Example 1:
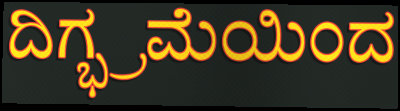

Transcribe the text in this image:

ದಿಗ್ಭ್ರಮೆಯಿಂದ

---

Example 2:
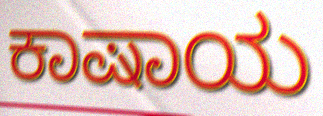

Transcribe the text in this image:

ಕಾಷಾಯ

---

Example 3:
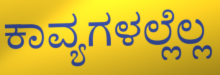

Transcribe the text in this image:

ಕಾವ್ಯಗಳಲ್ಲೆಲ್ಲ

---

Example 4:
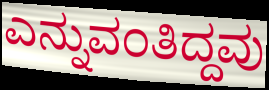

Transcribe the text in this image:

ಎನ್ನುವಂತಿದ್ದವು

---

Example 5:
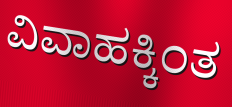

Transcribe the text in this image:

ವಿವಾಹಕ್ಕಿಂತ